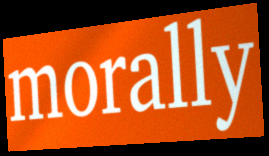
morally